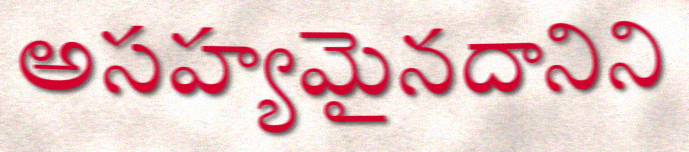
అసహ్యమైనదానిని